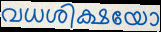
വധശിക്ഷയോ